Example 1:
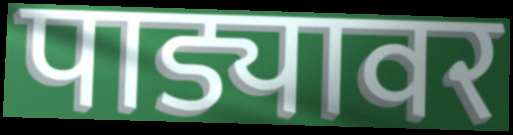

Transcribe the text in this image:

पाड्यावर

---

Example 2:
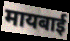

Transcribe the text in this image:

मायबाई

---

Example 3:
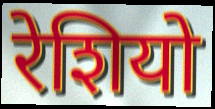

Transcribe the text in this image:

रेशियो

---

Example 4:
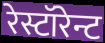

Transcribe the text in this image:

रेस्टॉरेन्ट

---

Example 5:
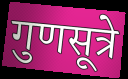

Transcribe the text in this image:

गुणसूत्रे